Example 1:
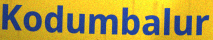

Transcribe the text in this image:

Kodumbalur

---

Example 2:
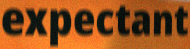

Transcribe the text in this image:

expectant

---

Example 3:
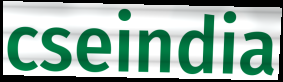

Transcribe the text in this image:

cseindia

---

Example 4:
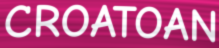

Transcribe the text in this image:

CROATOAN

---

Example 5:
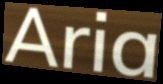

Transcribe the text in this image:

Aria